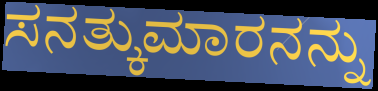
ಸನತ್ಕುಮಾರನನ್ನು